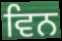
ਵਿਨ